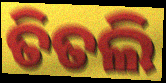
ତିତଲି